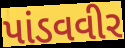
પાંડવવીર